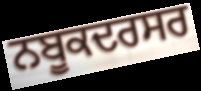
ਨਬੂਕਦਰਸਰ